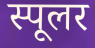
स्पूलर